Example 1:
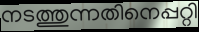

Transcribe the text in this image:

നടത്തുന്നതിനെപ്പറ്റി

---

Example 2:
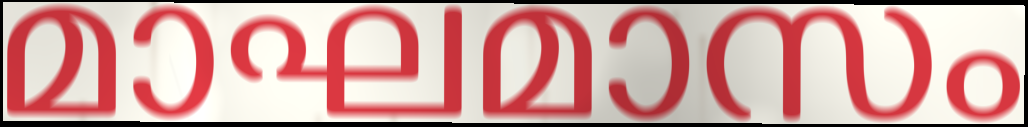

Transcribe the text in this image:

മാഘമാസം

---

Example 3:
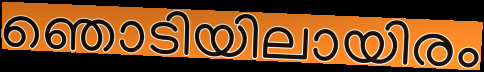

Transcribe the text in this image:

ഞൊടിയിലായിരം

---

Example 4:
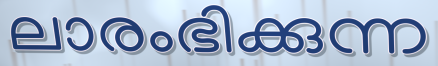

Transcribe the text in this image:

ലാരംഭിക്കുന്ന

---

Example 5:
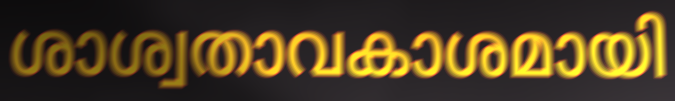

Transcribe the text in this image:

ശാശ്വതാവകാശമായി